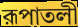
রূপাতলী